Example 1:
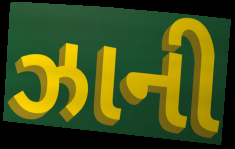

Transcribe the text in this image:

ઝાની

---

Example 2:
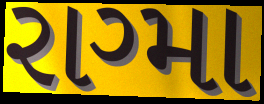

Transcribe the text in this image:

રાગ્મા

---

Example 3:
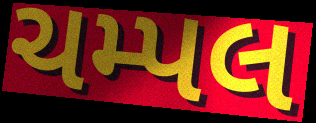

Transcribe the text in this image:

ચમ્પલ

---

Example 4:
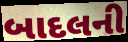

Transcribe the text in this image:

બાદલની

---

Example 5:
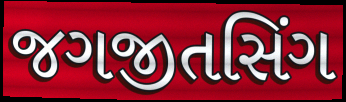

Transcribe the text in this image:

જગજીતસિંગ